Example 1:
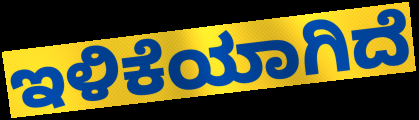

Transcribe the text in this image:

ಇಳಿಕೆಯಾಗಿದೆ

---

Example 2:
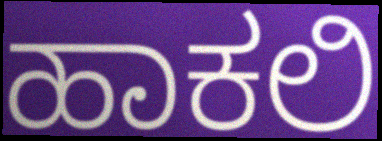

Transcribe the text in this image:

ಹಾಕಲಿ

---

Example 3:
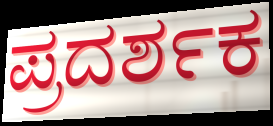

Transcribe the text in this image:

ಪ್ರದರ್ಶಕ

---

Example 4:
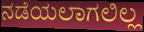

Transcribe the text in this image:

ನಡೆಯಲಾಗಲಿಲ್ಲ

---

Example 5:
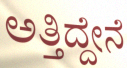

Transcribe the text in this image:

ಅತ್ತಿದ್ದೇನೆ